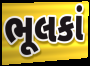
ભૂલકાં